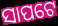
ସାପଟେ